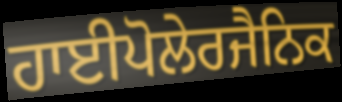
ਹਾਈਪੋਲੇਰਜੈਨਿਕ